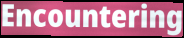
Encountering